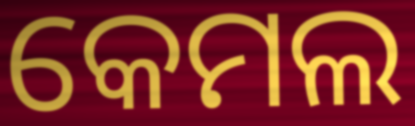
କେମଲ